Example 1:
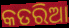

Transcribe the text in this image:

କତରିଆ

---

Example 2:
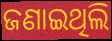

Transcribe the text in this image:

ଜଣାଇଥିଲି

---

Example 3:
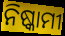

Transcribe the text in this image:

ନିଷ୍କାମୀ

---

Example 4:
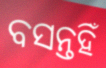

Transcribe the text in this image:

ବସନ୍ତହିଁ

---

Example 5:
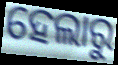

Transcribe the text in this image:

ହେଲାରୁ